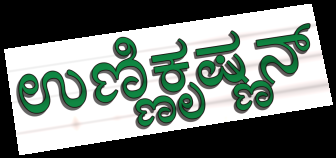
ಉಣ್ಣಿಕೃಷ್ಣನ್